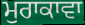
ਮੁਰਾਕਾਵਾ